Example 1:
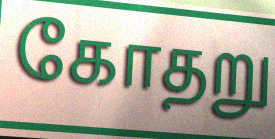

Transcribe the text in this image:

கோதறு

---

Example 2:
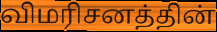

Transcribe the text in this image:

விமரிசனத்தின்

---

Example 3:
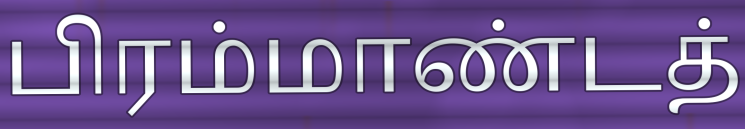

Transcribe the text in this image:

பிரம்மாண்டத்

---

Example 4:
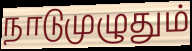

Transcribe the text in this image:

நாடுமுழுதும்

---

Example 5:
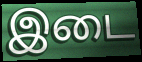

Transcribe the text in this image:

இடை